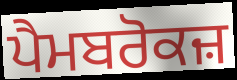
ਪੈਮਬਰੋਕਜ਼